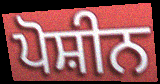
ਪੋਸ਼ੀਨ